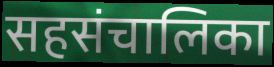
सहसंचालिका